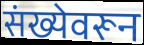
संख्येवरून